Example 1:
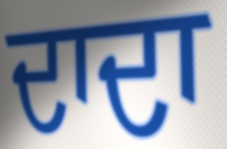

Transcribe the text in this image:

ਦਾਦਾ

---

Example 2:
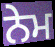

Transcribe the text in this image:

ਨੇਮ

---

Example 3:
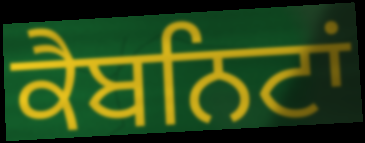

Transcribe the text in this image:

ਕੈਬਨਿਟਾਂ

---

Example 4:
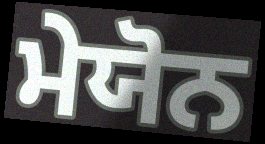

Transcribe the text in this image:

ਮੇਯੋਨ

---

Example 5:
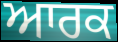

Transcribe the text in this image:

ਆਰਕ